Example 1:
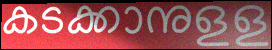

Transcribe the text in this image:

കടക്കാനുളള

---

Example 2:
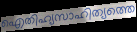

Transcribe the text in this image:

ഐതിഹ്യസാഹിത്യത്തെ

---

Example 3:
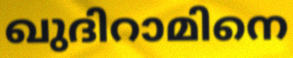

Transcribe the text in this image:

ഖുദിറാമിനെ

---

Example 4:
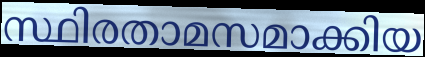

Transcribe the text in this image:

സ്ഥിരതാമസമാക്കിയ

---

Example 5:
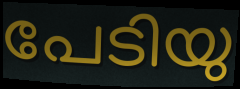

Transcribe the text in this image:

പേടിയു